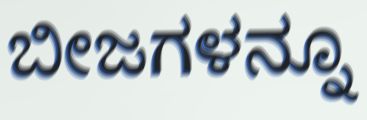
ಬೀಜಗಳನ್ನೂ